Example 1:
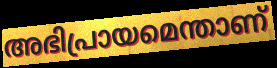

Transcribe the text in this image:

അഭിപ്രായമെന്താണ്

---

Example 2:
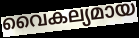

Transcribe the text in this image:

വൈകല്യമായ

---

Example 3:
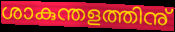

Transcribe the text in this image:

ശാകുന്തളത്തിനു്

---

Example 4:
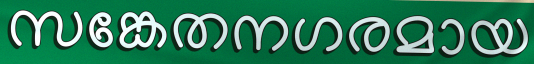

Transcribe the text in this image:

സങ്കേതനഗരമായ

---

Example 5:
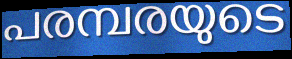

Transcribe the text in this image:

പരമ്പരയുടെ